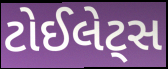
ટોઈલેટ્સ